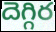
దెగ్గిర